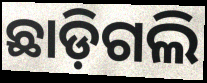
ଛାଡ଼ିଗଲି